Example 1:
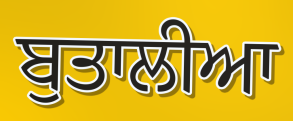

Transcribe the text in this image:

ਬੁਤਾਲੀਆ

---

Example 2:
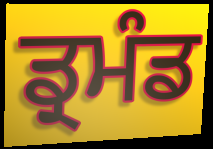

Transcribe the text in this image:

ਡ੍ਰਮੰਡ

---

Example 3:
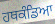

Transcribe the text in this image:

ਹਥਕੰਡਿਆ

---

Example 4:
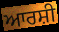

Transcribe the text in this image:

ਆਰਸ਼ੀ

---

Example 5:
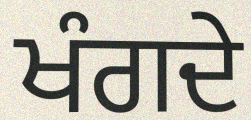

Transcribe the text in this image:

ਖੰਗਦੇ